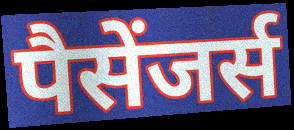
पैसेंजर्स